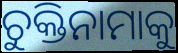
ଚୁକ୍ତିନାମାକୁ